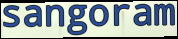
sangoram